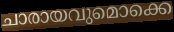
ചാരായവുമൊക്കെ